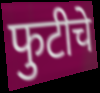
फुटीचे